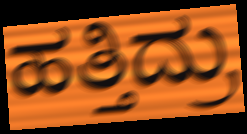
ಹತ್ತಿದ್ರು